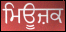
ਮਿਊਜ਼ਕ